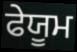
ਫੇਯੂਮ